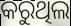
କରୁଥିଲ